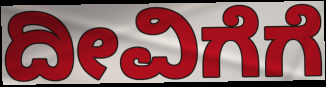
ದೀವಿಗೆಗೆ